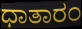
ಧಾತಾರಂ